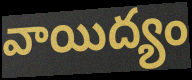
వాయిద్యం